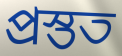
প্ৰস্তত